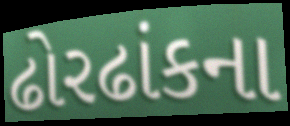
ઢોરઢાંકના